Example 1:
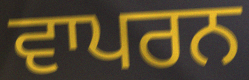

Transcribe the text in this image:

ਵਾਪਰਨ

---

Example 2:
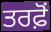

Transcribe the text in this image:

ਤਰਫ਼ੋਂ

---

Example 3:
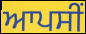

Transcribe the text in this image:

ਆਪਸੀਂ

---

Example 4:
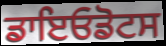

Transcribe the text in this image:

ਡਾਇਓਡੋਟਸ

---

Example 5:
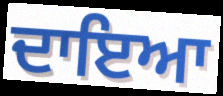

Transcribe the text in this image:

ਦਾਇਆ